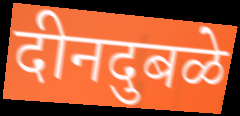
दीनदुबळे